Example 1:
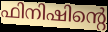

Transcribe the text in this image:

ഫിനിഷിന്റെ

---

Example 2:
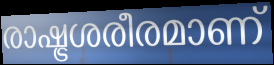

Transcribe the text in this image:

രാഷ്ട്രശരീരമാണ്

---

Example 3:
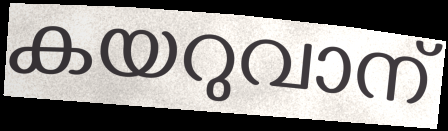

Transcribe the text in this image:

കയറുവാന്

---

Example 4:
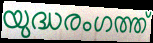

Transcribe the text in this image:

യുദ്ധരംഗത്ത്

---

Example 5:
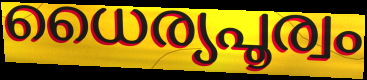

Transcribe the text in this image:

ധൈര്യപൂര്വം